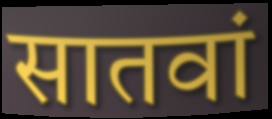
सातवां